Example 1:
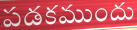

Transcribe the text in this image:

పడకముందు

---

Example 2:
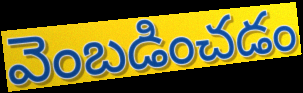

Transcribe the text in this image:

వెంబడించడం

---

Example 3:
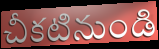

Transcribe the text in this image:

చీకటినుండి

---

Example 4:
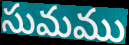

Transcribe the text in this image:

సుమము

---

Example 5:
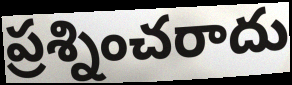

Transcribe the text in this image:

ప్రశ్నించరాదు